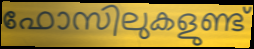
ഫോസിലുകളുണ്ട്